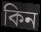
কিন